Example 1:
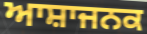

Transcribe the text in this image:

ਆਸ਼ਾਜਨਕ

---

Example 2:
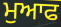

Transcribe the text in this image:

ਮੁਆਫ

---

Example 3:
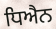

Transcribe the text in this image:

ਧਿਐਨ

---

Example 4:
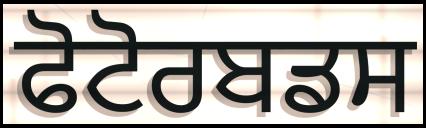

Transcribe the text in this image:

ਫੋਟੋਰਬਡਸ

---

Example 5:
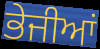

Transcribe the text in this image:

ਭੇਜੀਆਂ